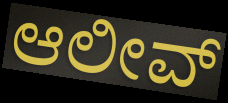
ಆಲೀವ್